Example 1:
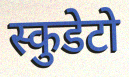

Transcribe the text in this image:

स्कुडेटो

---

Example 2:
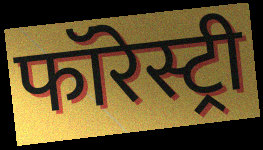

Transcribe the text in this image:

फॉरेस्ट्री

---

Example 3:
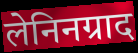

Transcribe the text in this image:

लेनिनग्राद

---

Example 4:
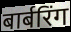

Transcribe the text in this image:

बार्बरिंग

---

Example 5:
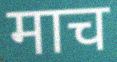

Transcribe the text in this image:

माच